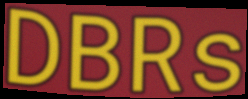
DBRs